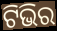
ଟିଭିର